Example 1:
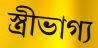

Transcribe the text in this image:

স্ত্রীভাগ্য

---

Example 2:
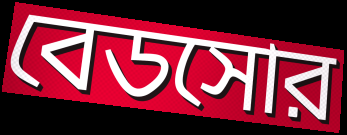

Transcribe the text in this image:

বেডসোর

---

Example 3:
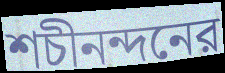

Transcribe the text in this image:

শচীনন্দনের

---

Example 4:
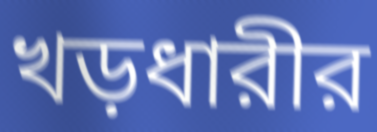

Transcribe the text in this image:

খড়ধারীর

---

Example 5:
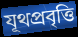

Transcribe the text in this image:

যূথপ্রবৃত্তি